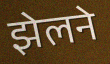
झेलने